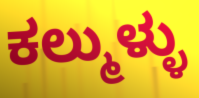
ಕಲ್ಮುಳ್ಳು